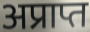
अप्राप्त